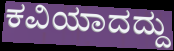
ಕವಿಯಾದದ್ದು